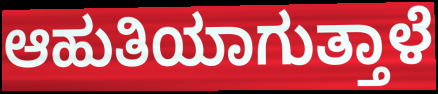
ಆಹುತಿಯಾಗುತ್ತಾಳೆ